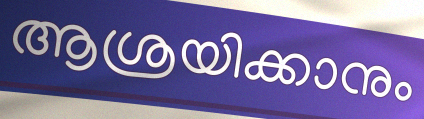
ആശ്രയിക്കാനും